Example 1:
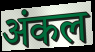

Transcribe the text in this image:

अंकल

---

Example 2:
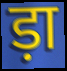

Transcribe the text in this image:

ड़ा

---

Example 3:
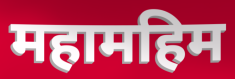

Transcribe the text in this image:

महामहिम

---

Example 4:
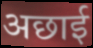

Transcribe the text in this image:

अछाई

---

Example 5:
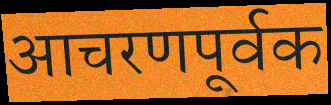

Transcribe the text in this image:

आचरणपूर्वक